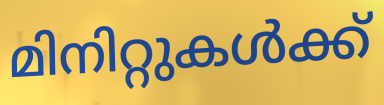
മിനിറ്റുകൾക്ക്